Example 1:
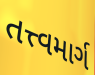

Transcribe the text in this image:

તત્ત્વમાર્ગ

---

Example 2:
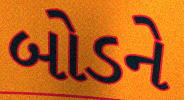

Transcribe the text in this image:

બોડને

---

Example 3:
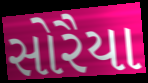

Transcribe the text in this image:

સોરૈયા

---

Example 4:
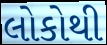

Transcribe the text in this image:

લોકોથી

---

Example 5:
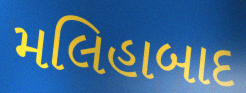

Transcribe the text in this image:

મલિહાબાદ